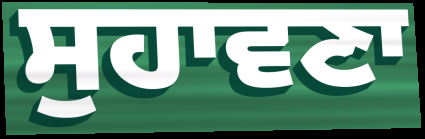
ਸੁਹਾਵਣਾ